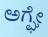
ಅಗ್ಘೇ